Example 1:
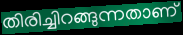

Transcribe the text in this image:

തിരിച്ചിറങ്ങുന്നതാണ്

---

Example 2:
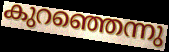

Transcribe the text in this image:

കുറഞ്ഞെന്നു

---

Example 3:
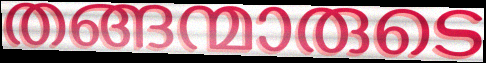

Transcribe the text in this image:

തങ്ങന്മാരുടെ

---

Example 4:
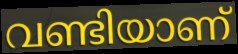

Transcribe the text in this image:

വണ്ടിയാണ്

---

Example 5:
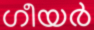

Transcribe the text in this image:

ഗീയർ